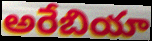
అరేబియా